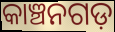
କାଞ୍ଚନଗଡ଼